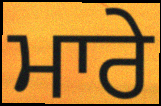
ਮਾਰੇ